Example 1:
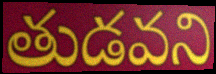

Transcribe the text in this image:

తుడవని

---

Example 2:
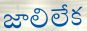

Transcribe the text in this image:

జాలిలేక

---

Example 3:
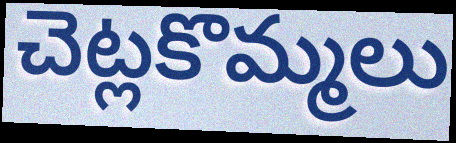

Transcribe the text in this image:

చెట్లకొమ్మలు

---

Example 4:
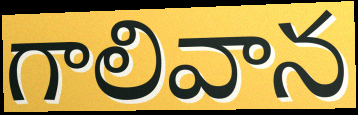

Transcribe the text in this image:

గాలివాన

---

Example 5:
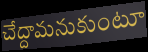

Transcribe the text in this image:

చేద్దామనుకుంటూ